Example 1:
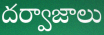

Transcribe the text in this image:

దర్వాజాలు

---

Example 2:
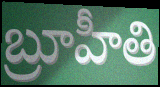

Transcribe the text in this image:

బ్రూహీతి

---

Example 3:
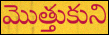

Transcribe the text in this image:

మొత్తుకుని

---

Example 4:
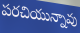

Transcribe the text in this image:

పరచియున్నావు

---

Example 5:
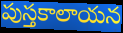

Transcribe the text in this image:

పుస్తకాలాయన